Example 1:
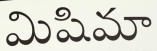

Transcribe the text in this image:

మిషిమా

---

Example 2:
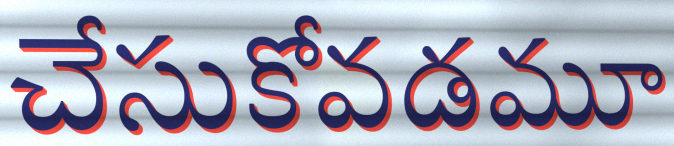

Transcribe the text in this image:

చేసుకోవడమూ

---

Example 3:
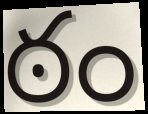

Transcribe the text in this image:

ఠం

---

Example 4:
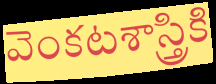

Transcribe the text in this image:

వెంకటశాస్త్రికి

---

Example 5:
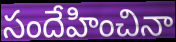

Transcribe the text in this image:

సందేహించినా